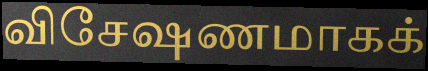
விசேஷணமாகக்